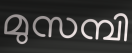
മുസമ്പി